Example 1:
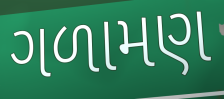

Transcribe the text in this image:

ગળામણ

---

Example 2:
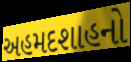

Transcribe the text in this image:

અહમદશાહનો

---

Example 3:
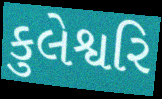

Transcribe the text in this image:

કુલેશ્વરિ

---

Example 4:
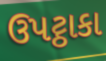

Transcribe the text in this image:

ઉપટ્ઠાકા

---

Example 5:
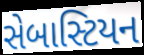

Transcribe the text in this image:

સેબાસ્ટિયન